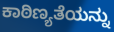
ಕಾಠಿಣ್ಯತೆಯನ್ನು